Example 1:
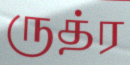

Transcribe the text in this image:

ருத்ர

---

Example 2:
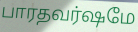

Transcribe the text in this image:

பாரதவர்ஷமே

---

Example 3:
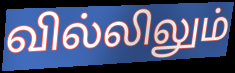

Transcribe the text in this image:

வில்லிலும்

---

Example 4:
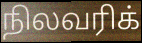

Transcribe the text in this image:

நிலவரிக்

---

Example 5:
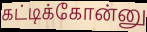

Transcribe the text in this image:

கட்டிக்கோன்னு